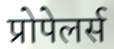
प्रोपेलर्स